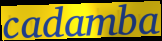
cadamba